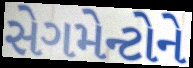
સેગમેન્ટોને